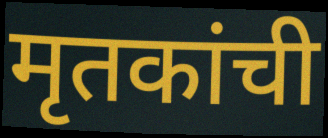
मृतकांची